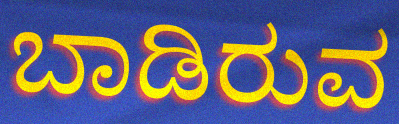
ಬಾಡಿರುವ